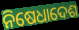
ନିଷେଧାଦେଶ